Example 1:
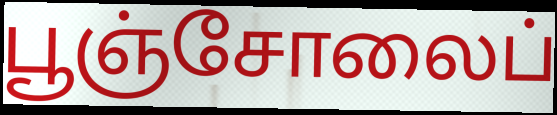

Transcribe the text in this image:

பூஞ்சோலைப்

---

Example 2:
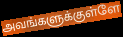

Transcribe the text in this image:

அவங்களுக்குள்ளே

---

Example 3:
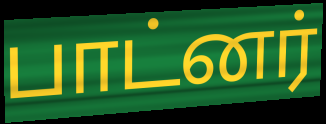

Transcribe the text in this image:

பாட்னர்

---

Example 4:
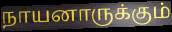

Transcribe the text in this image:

நாயனாருக்கும்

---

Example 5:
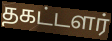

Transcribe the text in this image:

தகட்டளர்